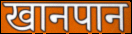
खानपान